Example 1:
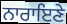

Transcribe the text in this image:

ਨਾਰਾਇਣੇ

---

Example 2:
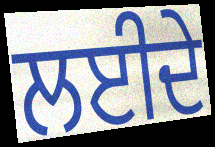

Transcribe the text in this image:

ਲਈਦੇ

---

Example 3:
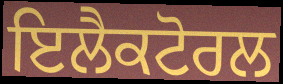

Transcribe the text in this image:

ਇਲੈਕਟੋਰਲ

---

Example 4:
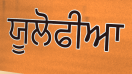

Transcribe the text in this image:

ਯੂਲੋਫੀਆ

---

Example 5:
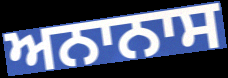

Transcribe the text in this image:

ਅਨਾਨਾਸ